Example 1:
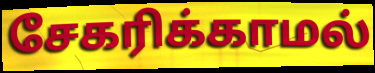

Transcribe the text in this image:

சேகரிக்காமல்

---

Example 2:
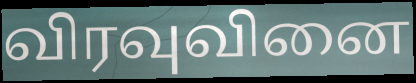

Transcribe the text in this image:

விரவுவினை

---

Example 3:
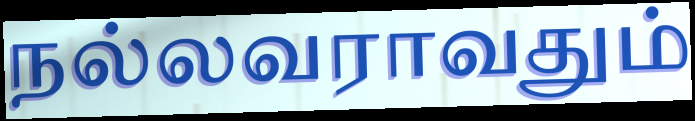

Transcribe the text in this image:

நல்லவராவதும்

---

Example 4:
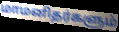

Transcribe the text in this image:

மாமனிதர்களும்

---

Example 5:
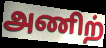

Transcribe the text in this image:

அணிற்